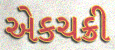
એકચક્રી